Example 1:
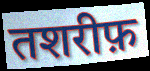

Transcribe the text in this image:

तशरीफ़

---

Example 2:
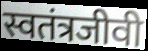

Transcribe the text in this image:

स्वतंत्रजीवी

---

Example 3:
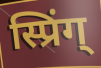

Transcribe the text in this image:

स्प्रिंग्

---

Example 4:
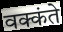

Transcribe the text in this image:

वक्कंते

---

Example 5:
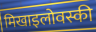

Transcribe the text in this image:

मिखाइलोवस्की